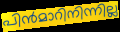
പിൻമാറിനിന്നില്ല